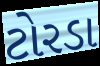
ટોરડા